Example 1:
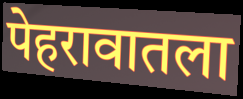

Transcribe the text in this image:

पेहरावातला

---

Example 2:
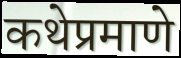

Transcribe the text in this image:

कथेप्रमाणे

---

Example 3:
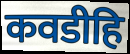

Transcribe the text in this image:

कवडीहि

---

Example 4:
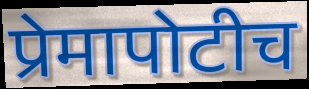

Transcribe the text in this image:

प्रेमापोटीच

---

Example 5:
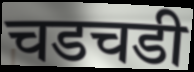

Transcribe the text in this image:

चडचडी